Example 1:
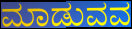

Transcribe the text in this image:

ಮಾಡುವವ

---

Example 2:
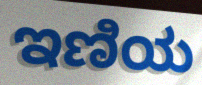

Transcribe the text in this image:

ಇಣಿಯ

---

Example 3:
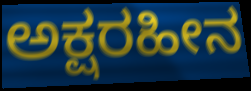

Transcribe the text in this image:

ಅಕ್ಷರಹೀನ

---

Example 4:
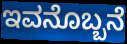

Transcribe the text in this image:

ಇವನೊಬ್ಬನೆ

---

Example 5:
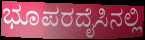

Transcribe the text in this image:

ಭೂಪರದೈಸಿನಲ್ಲಿ